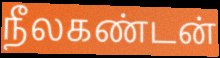
நீலகண்டன்